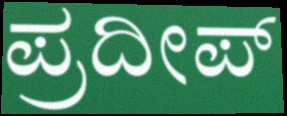
ಪ್ರದೀಪ್